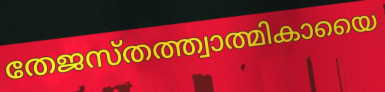
തേജസ്തത്ത്വാത്മികായൈ